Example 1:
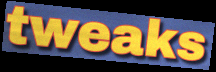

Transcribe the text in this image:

tweaks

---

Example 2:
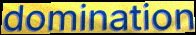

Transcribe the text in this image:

domination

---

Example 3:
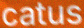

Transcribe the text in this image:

catus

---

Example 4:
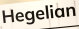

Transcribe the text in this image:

Hegelian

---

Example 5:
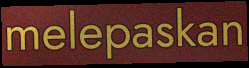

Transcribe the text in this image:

melepaskan